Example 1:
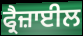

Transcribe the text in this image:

ਫ੍ਰੈਜ਼ਾਈਲ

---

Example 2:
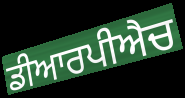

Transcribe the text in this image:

ਡੀਆਰਪੀਐਚ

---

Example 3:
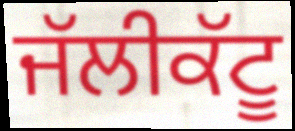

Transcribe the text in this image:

ਜੱਲੀਕੱਟੂ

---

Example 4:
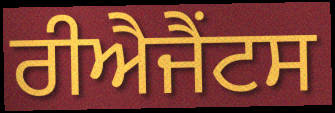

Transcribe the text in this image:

ਰੀਐਜੈਂਟਸ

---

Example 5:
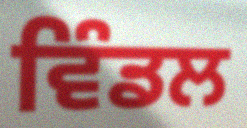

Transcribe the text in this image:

ਵਿੰਡਲ